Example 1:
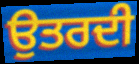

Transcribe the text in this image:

ਉਤਰਦੀ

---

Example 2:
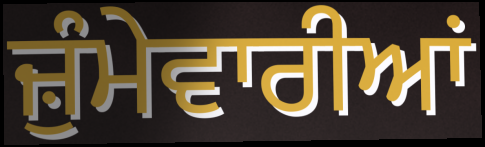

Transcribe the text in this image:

ਜ਼ੁੰਮੇਵਾਰੀਆਂ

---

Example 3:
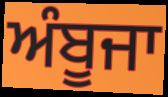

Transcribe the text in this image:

ਅੰਬੂਜਾ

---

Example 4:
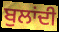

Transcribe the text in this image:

ਬੁਲਾਂਦੀ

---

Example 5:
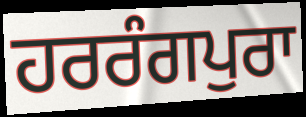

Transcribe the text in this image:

ਹਰਰੰਗਪੁਰਾ